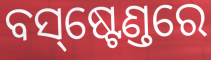
ବସ୍‌ଷ୍ଟେଣ୍ଡରେ